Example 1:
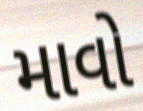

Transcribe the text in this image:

માવો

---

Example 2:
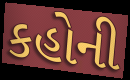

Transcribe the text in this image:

કહોની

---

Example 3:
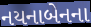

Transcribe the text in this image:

નયનાબેનના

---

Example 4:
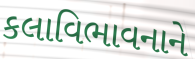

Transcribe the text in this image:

કલાવિભાવનાને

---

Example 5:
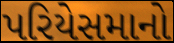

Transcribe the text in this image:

પરિયેસમાનો